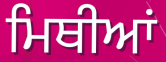
ਮਿਥੀਆਂ